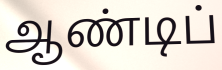
ஆண்டிப்